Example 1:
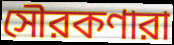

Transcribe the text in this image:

সৌরকণারা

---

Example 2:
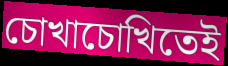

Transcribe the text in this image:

চোখাচোখিতেই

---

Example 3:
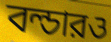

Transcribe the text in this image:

বল্ডারও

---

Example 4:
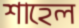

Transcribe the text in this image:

শাহেল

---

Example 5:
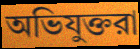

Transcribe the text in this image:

অভিযুক্তরা